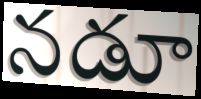
నడూ